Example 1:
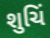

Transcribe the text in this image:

શુચિં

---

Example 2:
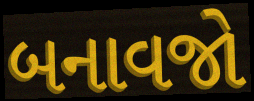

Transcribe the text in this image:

બનાવજો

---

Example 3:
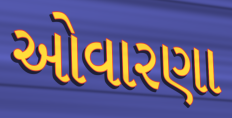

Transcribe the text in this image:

ઓવારણા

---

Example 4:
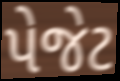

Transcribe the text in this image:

પેજેટ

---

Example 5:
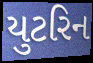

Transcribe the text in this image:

યુટરિન